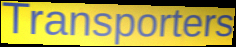
Transporters